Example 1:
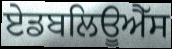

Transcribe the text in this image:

ਏਡਬਲਿਊਐੱਸ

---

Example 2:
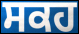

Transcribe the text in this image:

ਸਕਹ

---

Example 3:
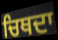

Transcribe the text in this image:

ਚਿਥਦਾ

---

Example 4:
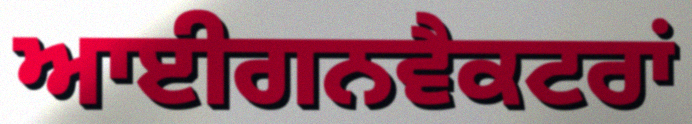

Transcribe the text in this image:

ਆਈਗਨਵੈਕਟਰਾਂ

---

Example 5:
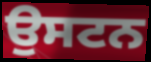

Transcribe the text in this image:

ਉਸਟਨ